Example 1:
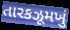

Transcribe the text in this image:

તારકઝૂમખું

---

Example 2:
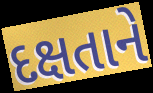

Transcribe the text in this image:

દક્ષતાને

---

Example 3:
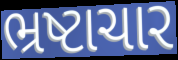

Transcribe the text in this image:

ભ્રષ્ટાચાર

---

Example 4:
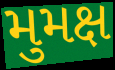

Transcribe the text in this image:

મુમક્ષ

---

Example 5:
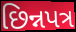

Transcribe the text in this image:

છિન્નપત્ર